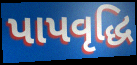
પાપવૃદ્ધિ